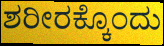
ಶರೀರಕ್ಕೊಂದು